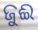
ଜୁଈ